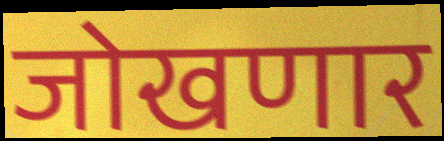
जोखणार